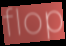
flop